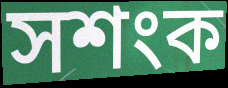
সশংক